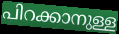
പിറക്കാനുള്ള